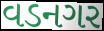
વડનગર